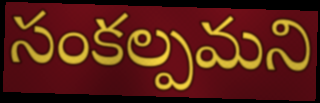
సంకల్పమని